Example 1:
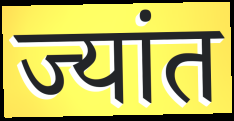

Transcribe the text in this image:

ज्यांत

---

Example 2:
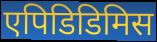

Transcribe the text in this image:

एपिडिडिमिस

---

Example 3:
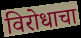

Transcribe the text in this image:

विरोधाचा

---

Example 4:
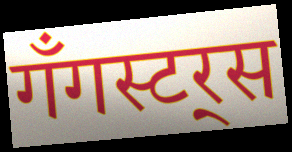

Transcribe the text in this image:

गँगस्टर्स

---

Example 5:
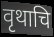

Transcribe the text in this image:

वृथाचि